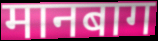
मानबाग